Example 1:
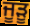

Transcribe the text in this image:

ਜੂੜੂ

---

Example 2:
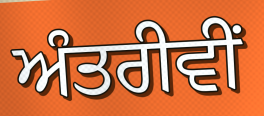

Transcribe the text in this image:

ਅੰਤਰੀਵੀਂ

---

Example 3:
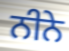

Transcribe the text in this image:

ਨੀਨੇ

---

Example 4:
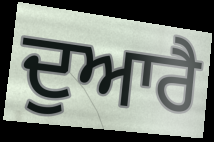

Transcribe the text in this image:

ਦੁਆਰੈ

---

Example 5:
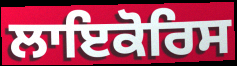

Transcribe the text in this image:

ਲਾਇਕੋਰਿਸ